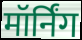
मॉर्निंग